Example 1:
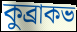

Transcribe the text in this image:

কুব্রাকভ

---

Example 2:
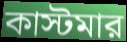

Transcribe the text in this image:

কাস্টমার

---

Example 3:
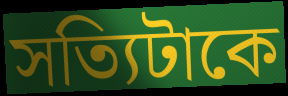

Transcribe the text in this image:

সত্যিটাকে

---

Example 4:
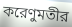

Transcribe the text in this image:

করেণুমতীর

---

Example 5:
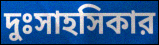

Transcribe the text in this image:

দুঃসাহসিকার